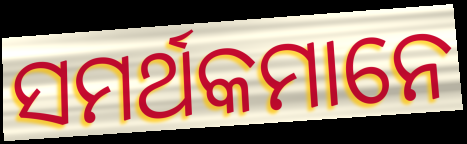
ସମର୍ଥକମାନେ